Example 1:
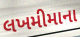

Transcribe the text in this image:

લખમીમાના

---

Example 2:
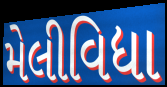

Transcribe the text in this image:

મેલીવિદ્યા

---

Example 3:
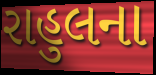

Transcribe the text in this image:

રાહુલના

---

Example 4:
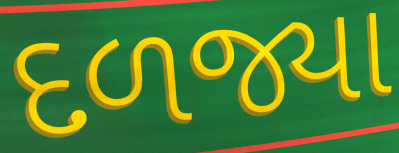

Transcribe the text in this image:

દળજ્યા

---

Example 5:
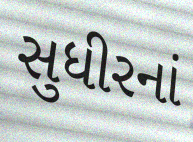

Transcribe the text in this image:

સુધીરનાં